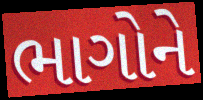
ભાગોને